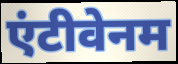
एंटीवेनम